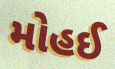
મોહઈ